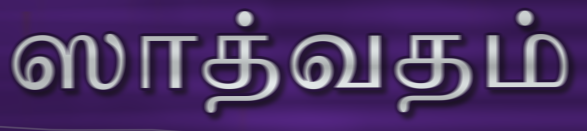
ஸாத்வதம்